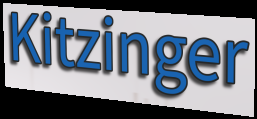
Kitzinger